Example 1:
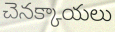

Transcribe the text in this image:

చెనక్కాయలు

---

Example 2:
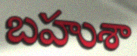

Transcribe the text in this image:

బహుశా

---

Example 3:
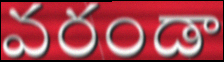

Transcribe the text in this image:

వరండా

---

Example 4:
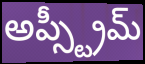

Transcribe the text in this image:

అప్స్ట్రీమ్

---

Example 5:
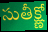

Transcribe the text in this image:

సుతీక్ష్ణో